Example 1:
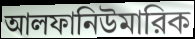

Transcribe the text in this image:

আলফানিউমারিক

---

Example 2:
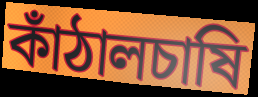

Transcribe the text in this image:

কাঁঠালচাষি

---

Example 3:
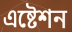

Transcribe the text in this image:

এষ্টেশন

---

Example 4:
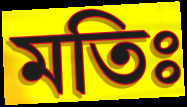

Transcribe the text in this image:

মতিঃ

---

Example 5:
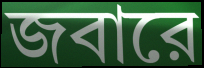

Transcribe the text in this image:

জবারে